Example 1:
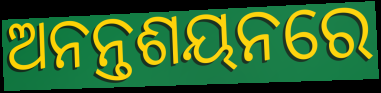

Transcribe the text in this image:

ଅନନ୍ତଶୟନରେ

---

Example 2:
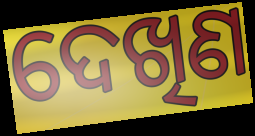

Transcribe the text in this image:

ଦେଖିଣ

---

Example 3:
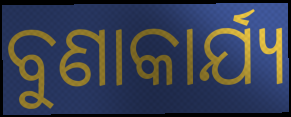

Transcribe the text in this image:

ବୁଣାକାର୍ଯ୍ୟ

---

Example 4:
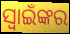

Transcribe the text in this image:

ସ୍ୱାଇଁଙ୍କର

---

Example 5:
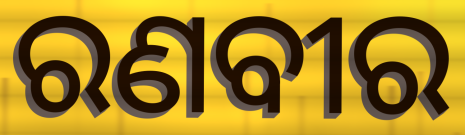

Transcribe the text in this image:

ରଣବୀର